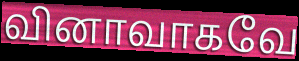
வினாவாகவே